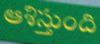
ఆశిస్తుంది